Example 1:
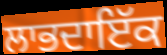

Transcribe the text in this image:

ਲਾਭਦਾਇੱਕ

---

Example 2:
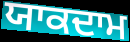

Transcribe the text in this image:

ਯਾਕਦਾਮ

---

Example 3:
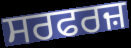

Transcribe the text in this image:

ਸਰਫਰਜ਼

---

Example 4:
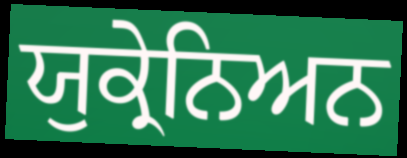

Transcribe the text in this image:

ਯੁਕ੍ਰੇਨਿਅਨ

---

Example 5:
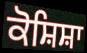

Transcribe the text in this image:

ਕੋਸ਼ਿਸ਼ਾ